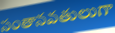
సంతానవతులుగా